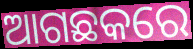
ଆଗଛକରେ